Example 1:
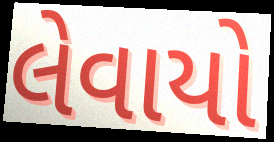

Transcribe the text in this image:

લેવાયો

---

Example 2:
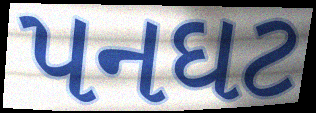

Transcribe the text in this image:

પનઘટ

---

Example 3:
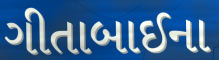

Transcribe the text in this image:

ગીતાબાઈના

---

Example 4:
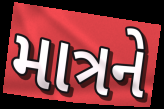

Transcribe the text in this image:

માત્રને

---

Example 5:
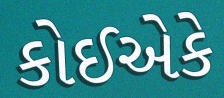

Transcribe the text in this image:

કોઈએકે